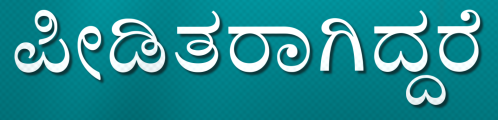
ಪೀಡಿತರಾಗಿದ್ದರೆ